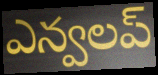
ఎన్వలప్